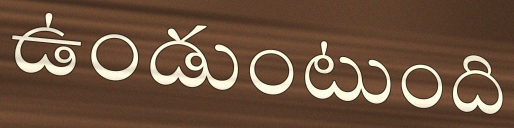
ఉండుంటుంది